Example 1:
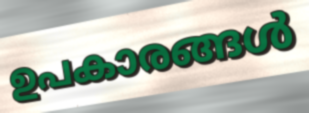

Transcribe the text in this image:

ഉപകാരങ്ങൾ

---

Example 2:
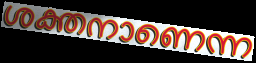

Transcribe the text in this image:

ശക്തനാണെന്ന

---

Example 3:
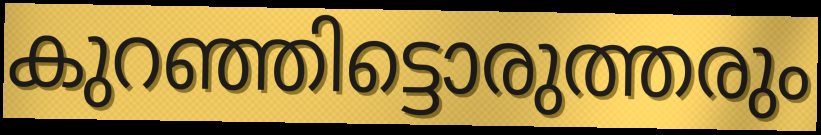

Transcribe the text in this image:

കുറഞ്ഞിട്ടൊരുത്തരും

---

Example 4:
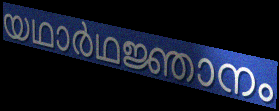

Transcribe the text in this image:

യഥാർഥജ്ഞാനം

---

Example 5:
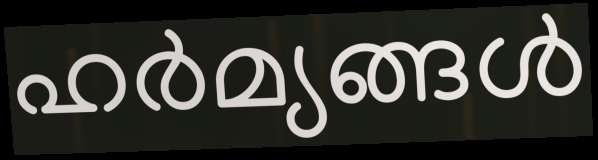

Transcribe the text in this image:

ഹർമ്യങ്ങൾ